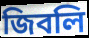
জিবলি